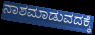
ನಾಶಮಾಡುವದಕ್ಕೆ